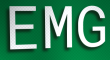
EMG